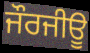
ਜੌਰਜੀਊ